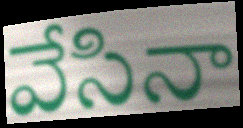
వేసినా